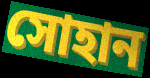
সোহান